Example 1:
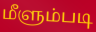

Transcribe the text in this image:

மீளும்படி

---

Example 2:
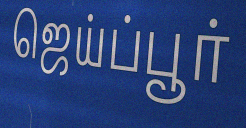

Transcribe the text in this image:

ஜெய்ப்பூர்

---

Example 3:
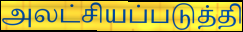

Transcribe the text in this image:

அலட்சியப்படுத்தி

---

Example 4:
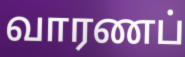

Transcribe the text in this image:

வாரணப்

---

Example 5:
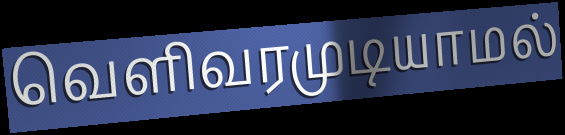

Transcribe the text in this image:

வெளிவரமுடியாமல்